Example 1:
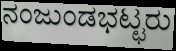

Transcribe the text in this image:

ನಂಜುಂಡಭಟ್ಟರು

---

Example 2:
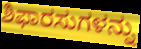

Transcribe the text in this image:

ಶಿಫಾರಸುಗಳನ್ನು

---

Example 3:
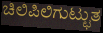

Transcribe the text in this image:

ಚಿಲಿಪಿಲಿಗುಟ್ಟುತ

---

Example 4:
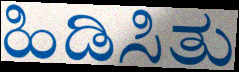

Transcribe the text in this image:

ಹಿಡಿಸಿತು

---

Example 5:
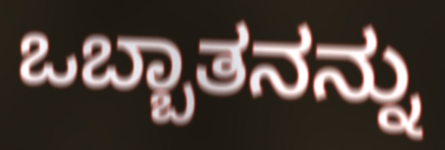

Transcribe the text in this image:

ಒಬ್ಬಾತನನ್ನು